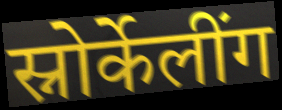
स्नोर्केलींग